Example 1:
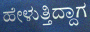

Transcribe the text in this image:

ಹೇಳುತ್ತಿದ್ದಾಗ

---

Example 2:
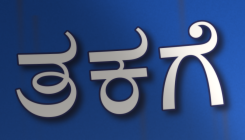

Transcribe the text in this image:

ತಕಗೆ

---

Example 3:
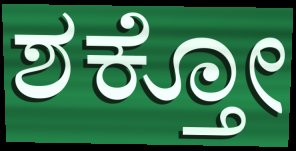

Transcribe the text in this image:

ಶಕ್ತೋ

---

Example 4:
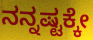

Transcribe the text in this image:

ನನ್ನಷ್ಟಕ್ಕೇ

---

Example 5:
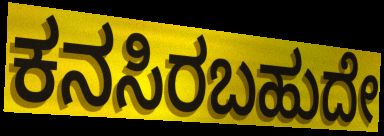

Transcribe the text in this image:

ಕನಸಿರಬಹುದೇ